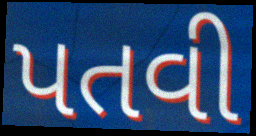
પતવી